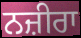
ਨਜ਼ੀਰਾ